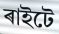
ৰাইটে